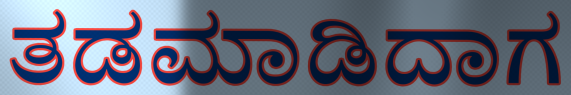
ತಡಮಾಡಿದಾಗ